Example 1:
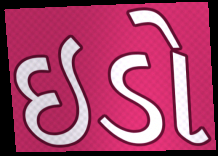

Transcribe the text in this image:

ઇડો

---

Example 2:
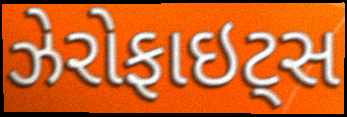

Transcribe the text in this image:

ઝેરોફાઇટ્સ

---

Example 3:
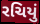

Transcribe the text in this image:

રચિયું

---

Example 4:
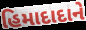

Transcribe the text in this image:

હિમાદાદાને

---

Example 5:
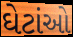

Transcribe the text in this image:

ઘેટાંઓ